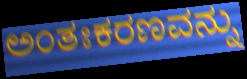
ಅಂತಃಕರಣವನ್ನು